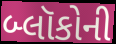
બ્લૉકોની